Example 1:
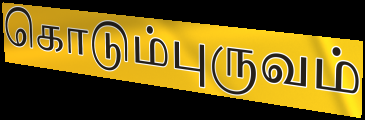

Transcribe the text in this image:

கொடும்புருவம்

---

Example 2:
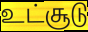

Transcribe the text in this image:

உட்சூடு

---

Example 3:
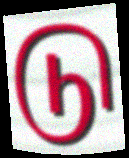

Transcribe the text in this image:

டு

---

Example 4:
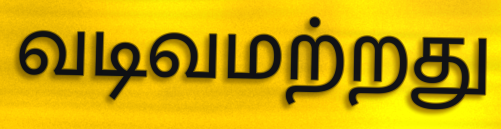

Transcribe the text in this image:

வடிவமற்றது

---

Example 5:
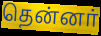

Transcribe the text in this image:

தென்னர்